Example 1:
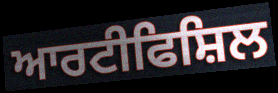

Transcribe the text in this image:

ਆਰਟੀਫਿਸ਼ਿਲ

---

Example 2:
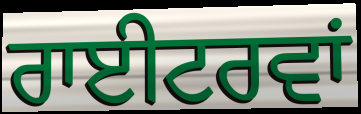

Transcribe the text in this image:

ਰਾਈਟਰਵਾਂ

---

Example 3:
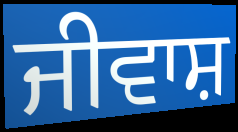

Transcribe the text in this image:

ਜੀਵਾਸ਼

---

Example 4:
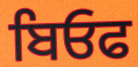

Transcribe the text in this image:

ਬਿਓਫ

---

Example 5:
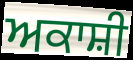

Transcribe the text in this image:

ਅਕਾਸ਼ੀ